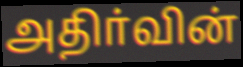
அதிர்வின்